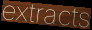
extracts